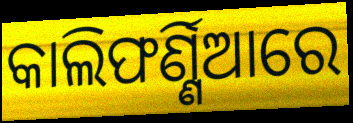
କାଲିଫର୍ଣ୍ଣିଆରେ